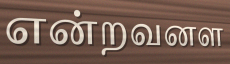
என்றவனள